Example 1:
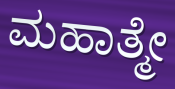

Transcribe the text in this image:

ಮಹಾತ್ಮೇ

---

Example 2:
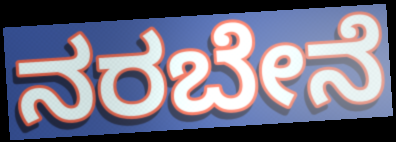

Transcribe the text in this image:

ನರಬೇನೆ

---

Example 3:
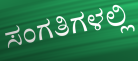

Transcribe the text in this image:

ಸಂಗತಿಗಳಲ್ಲಿ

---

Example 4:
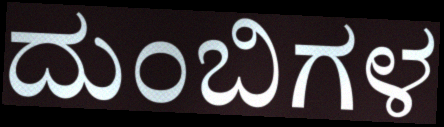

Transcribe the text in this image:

ದುಂಬಿಗಳ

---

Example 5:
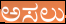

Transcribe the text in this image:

ಅಸಲು